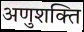
अणुशक्ति